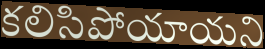
కలిసిపోయాయని